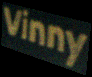
Vinny